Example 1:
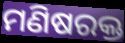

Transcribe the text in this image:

ମଣିଷରକ୍ତ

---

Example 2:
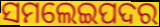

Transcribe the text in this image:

ସମଲେଇପଦର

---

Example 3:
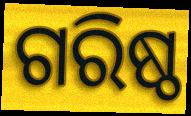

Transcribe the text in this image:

ଗରିଷ୍ଠ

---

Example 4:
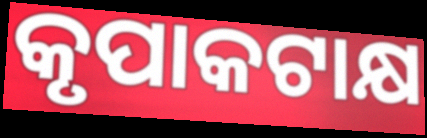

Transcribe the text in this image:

କୃପାକଟାକ୍ଷ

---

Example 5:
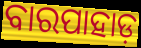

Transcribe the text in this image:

ବାରପାହାଡ଼